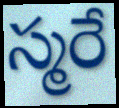
స్మరే